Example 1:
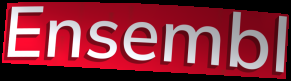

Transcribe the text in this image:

Ensembl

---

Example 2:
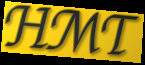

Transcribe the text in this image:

HMT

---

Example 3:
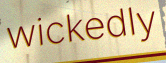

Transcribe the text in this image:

wickedly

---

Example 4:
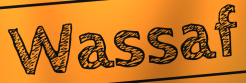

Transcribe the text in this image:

Wassaf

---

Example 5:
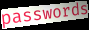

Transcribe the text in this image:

passwords